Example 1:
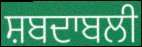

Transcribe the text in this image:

ਸ਼ਬਦਾਬਲੀ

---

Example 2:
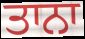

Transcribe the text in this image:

ਤਾਨਾ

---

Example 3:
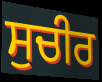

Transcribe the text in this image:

ਸੁਚੀਰ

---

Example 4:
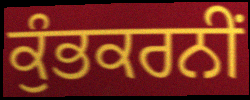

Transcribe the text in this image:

ਕੁੰਭਕਰਨੀਂ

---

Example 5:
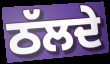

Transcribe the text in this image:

ਠੱਲਦੇ